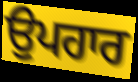
ਉਪਹਾਰ